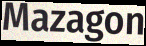
Mazagon